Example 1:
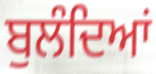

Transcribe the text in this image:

ਬੁਲੰਦਿਆਂ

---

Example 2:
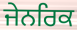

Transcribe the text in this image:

ਜੇਨਰਿਕ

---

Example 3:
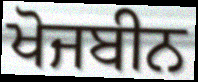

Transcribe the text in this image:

ਖੋਜਬੀਨ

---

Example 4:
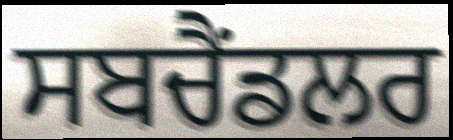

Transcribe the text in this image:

ਸਬਚੈਂਡਲਰ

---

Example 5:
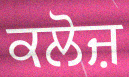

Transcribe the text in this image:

ਕਲੋਜ਼